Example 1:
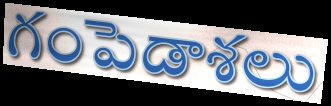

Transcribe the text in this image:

గంపెడాశలు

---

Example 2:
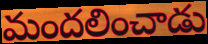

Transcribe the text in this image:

మందలించాడు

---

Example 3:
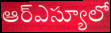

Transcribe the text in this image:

ఆర్ఎస్యూలో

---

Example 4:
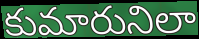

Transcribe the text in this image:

కుమారునిలా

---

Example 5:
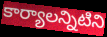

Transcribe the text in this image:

కార్యాలన్నిటిని